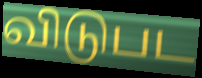
விடுபட